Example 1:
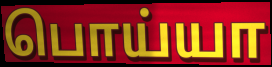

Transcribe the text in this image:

பொய்யா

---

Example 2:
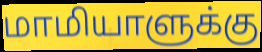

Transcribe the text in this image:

மாமியாளுக்கு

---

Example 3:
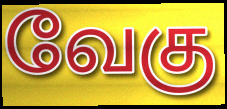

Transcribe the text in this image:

வேகு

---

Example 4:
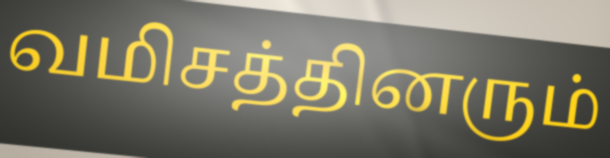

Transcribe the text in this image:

வமிசத்தினரும்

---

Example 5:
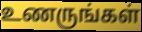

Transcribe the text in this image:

உணருங்கள்